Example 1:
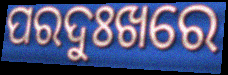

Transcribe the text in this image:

ପରଦୁଃଖରେ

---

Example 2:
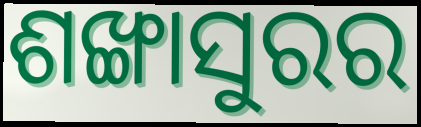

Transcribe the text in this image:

ଶଙ୍ଖାସୁରର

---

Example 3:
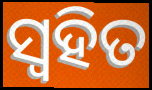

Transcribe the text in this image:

ସ୍ୱହିତ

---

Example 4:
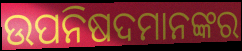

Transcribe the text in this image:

ଉପନିଷଦମାନଙ୍କର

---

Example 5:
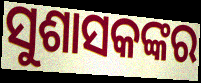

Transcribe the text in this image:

ସୁଶାସକଙ୍କର